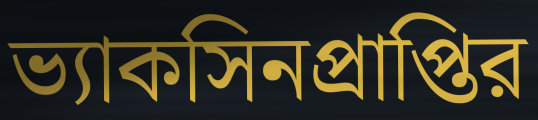
ভ্যাকসিনপ্রাপ্তির